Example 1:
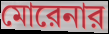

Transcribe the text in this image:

মোরেনার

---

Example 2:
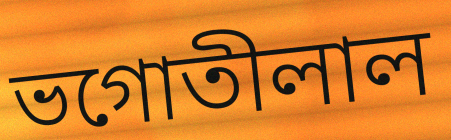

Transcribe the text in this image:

ভগোতীলাল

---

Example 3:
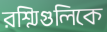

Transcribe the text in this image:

রশ্মিগুলিকে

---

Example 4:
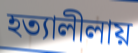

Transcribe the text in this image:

হত্যালীলায়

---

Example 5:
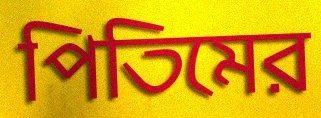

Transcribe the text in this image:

পিতিমের